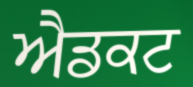
ਐਡਕਟ